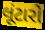
લૂંટારો